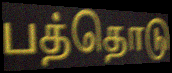
பத்தொடு